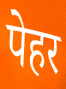
पेहर